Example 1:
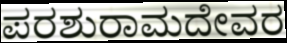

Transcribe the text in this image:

ಪರಶುರಾಮದೇವರ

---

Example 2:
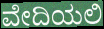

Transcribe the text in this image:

ವೇದಿಯಲಿ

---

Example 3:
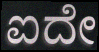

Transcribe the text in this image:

ಐದೇ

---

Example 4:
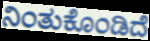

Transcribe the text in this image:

ನಿಂತುಕೊಂಡಿದೆ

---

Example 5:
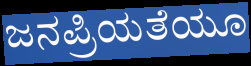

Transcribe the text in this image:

ಜನಪ್ರಿಯತೆಯೂ